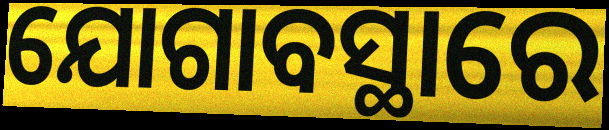
ଯୋଗାବସ୍ଥାରେ